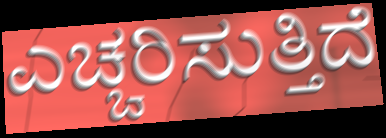
ಎಚ್ಚರಿಸುತ್ತಿದೆ